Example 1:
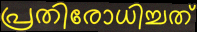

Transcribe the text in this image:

പ്രതിരോധിച്ചത്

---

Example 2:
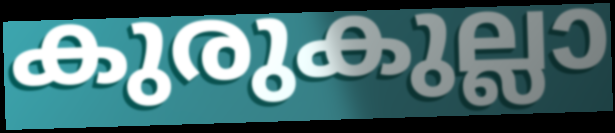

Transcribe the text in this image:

കുരുകുല്ലാ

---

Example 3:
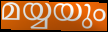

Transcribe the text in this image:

മയ്യയും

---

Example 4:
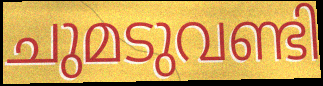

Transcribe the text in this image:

ചുമടുവണ്ടി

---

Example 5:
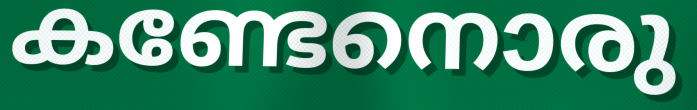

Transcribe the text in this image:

കണ്ടേനൊരു